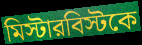
মিস্টারবিস্টকে